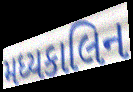
મધ્યકાલિન